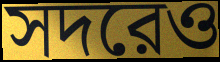
সদরেও